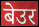
बेउर